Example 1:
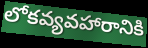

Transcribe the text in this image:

లోకవ్యవహారానికి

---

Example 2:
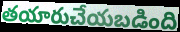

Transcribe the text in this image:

తయారుచేయబడింది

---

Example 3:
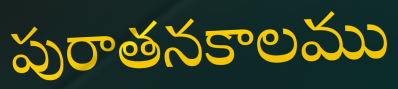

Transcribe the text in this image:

పురాతనకాలము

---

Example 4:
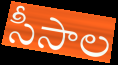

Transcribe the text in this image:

సీసాల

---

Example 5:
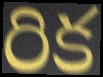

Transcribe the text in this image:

రిక